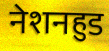
नेशनहुड